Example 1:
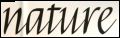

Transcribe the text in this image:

nature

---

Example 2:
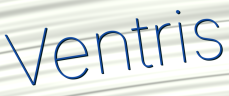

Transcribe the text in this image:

Ventris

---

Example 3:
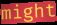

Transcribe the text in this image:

might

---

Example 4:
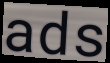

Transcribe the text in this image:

ads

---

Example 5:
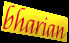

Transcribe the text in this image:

bharian